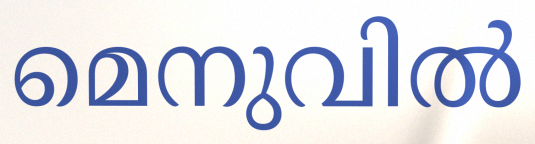
മെനുവിൽ